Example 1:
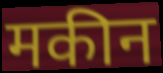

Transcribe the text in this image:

मकीन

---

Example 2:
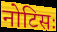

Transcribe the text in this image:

नोटिसः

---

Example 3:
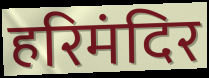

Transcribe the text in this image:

हरिमंदिर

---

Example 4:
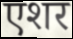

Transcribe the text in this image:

एशर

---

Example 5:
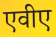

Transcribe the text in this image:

एवीए